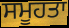
ਸਮੂਹਤਾ